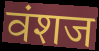
वंशज